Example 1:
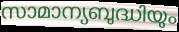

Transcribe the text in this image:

സാമാന്യബുദ്ധിയും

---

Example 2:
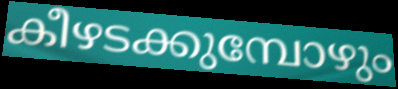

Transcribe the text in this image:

കീഴടക്കുമ്പോഴും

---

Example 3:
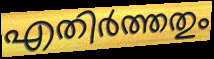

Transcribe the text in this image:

എതിർത്തതും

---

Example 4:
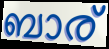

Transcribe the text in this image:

ബാര്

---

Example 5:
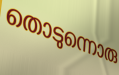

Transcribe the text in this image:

തൊടുന്നൊരു